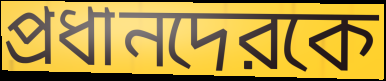
প্রধানদেরকে